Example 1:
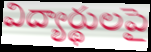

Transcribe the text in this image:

విద్యార్థులపై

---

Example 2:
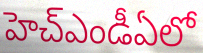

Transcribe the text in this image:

హెచ్ఎండీఏలో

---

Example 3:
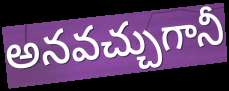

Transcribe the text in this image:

అనవచ్చుగానీ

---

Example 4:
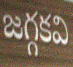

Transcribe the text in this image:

జగ్గకవి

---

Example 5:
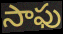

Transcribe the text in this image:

సాఫు